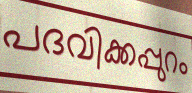
പദവിക്കപ്പുറം